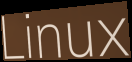
Linux